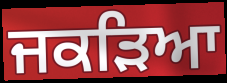
ਜਕੜਿਆ